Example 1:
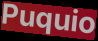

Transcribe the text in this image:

Puquio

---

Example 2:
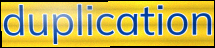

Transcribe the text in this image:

duplication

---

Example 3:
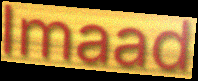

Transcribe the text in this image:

Imaad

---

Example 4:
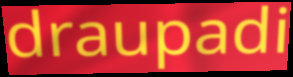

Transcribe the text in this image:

draupadi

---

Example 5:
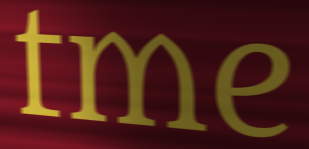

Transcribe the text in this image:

tme